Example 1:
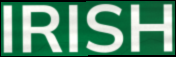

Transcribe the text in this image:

IRISH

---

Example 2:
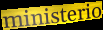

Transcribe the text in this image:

ministerio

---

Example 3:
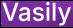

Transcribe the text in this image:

Vasily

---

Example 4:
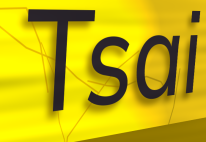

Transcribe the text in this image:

Tsai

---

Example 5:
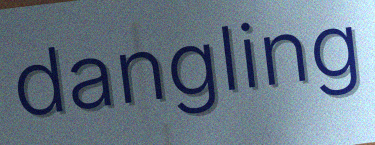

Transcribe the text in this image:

dangling